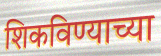
शिकविण्याच्या